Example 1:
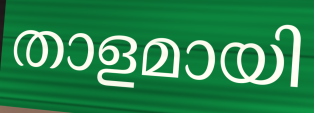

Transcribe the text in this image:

താളമായി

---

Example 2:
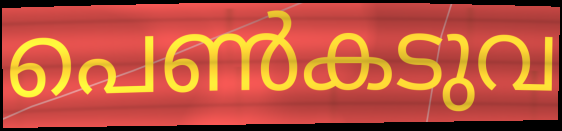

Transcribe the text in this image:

പെൺകടുവ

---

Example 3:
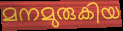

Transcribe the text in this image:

മനമുരുകിയ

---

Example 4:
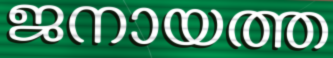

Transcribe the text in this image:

ജനായത്ത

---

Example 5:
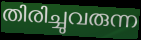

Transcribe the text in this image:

തിരിച്ചുവരുന്ന